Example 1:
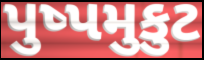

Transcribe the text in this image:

પુષ્પમુકુટ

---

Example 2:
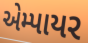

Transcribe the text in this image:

એમ્પાયર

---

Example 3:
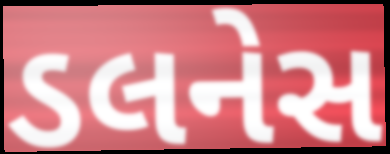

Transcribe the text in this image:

ડલનેસ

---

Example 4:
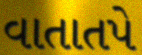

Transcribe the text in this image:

વાતાતપે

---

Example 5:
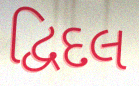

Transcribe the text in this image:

દ્વિદલ